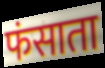
फंसाता